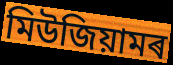
মিউজিয়ামৰ